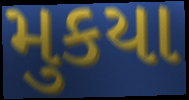
મુકયા